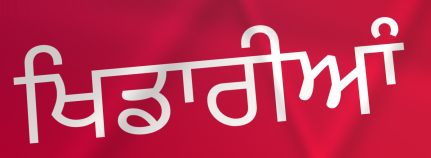
ਖਿਡਾਰੀਆੰ